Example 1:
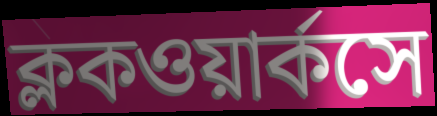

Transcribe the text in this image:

ক্লকওয়ার্কসে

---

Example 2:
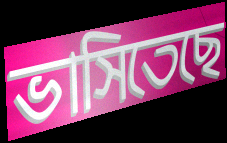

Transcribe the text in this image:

ভাসিতেছে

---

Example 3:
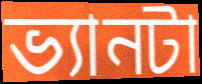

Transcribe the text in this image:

ভ্যানটা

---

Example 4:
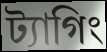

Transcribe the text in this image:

ট্যাগিং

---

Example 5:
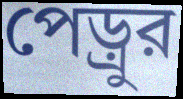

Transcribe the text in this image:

পেড়্রুর